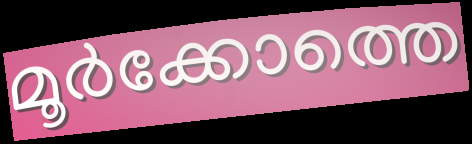
മൂർക്കോത്തെ